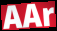
AAr